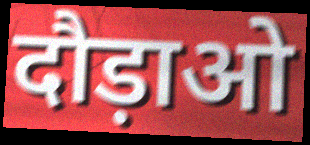
दौड़ाओ